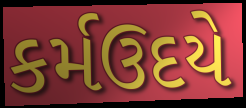
કર્મઉદયે